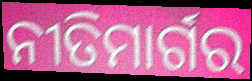
ନୀତିମାର୍ଗର